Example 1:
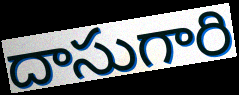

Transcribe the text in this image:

దాసుగారి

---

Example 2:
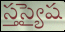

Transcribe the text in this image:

స్తస్యైష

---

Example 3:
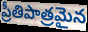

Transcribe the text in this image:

ప్రీతిపాత్రమైన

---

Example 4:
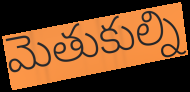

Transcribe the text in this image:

మెతుకుల్ని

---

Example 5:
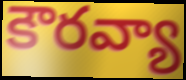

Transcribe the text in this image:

కౌరవ్యా